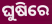
ଘୁଷିରେ